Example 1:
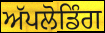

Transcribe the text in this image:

ਅੱਪਲੋਡਿੰਗ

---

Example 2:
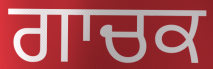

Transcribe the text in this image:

ਗਾਚਕ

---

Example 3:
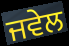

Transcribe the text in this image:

ਜਵੇਲ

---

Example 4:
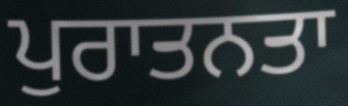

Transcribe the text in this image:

ਪੁਰਾਤਨਤਾ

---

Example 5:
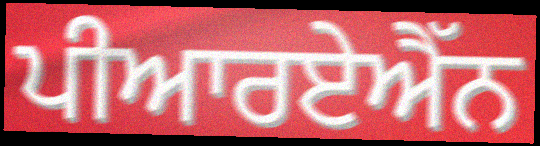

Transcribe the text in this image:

ਪੀਆਰਏਐੱਨ